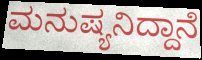
ಮನುಷ್ಯನಿದ್ದಾನೆ